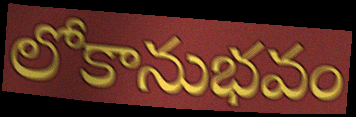
లోకానుభవం